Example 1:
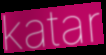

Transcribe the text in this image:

katar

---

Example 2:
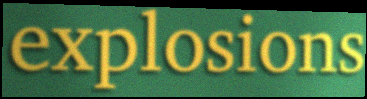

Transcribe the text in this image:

explosions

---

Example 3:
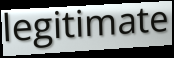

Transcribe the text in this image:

legitimate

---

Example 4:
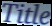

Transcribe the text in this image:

Title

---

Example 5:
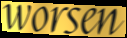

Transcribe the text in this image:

worsen